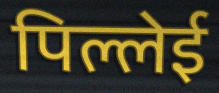
पिल्लेई